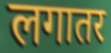
लगातर